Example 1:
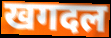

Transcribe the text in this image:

खगदल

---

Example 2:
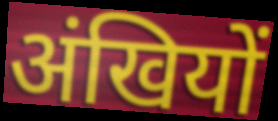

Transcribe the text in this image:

अंखियों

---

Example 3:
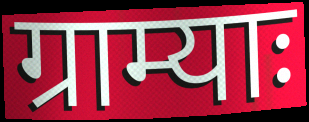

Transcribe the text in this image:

ग्राम्याः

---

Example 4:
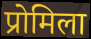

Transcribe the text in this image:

प्रोमिला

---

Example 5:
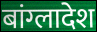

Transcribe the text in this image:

बांग्‍लादेश